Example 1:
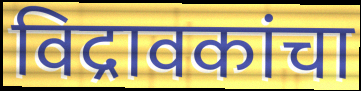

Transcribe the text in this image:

विद्रावकांचा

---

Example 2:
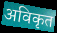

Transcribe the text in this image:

अविकृत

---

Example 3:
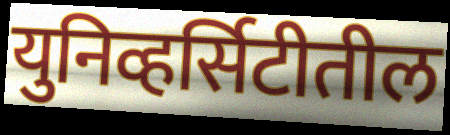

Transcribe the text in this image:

युनिव्हर्सिटीतील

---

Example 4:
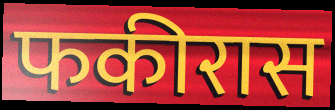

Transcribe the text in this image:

फकीरास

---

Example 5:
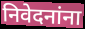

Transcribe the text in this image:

निवेदनांना